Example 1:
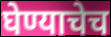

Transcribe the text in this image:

घेण्याचेच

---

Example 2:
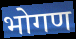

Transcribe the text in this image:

भोगण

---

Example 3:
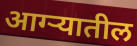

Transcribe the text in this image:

आग्ऱ्यातील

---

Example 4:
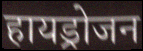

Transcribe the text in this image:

हायड्रोजन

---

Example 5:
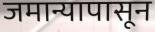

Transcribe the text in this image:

जमान्यापासून